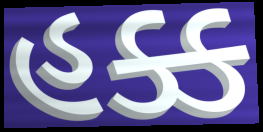
હક્ક